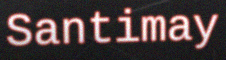
Santimay